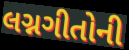
લગ્નગીતોની